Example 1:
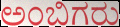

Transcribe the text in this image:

ಅಂಬಿಗರು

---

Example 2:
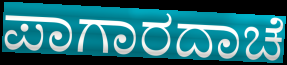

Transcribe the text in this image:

ಪಾಗಾರದಾಚೆ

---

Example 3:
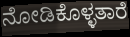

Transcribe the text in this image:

ನೋಡಿಕೊಳ್ಳತಾರೆ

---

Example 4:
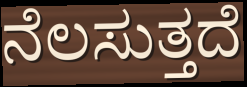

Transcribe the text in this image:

ನೆಲಸುತ್ತದೆ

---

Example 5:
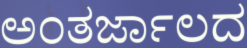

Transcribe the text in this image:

ಅಂತರ್ಜಾಲದ